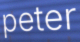
peter